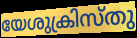
യേശുക്രിസ്തു